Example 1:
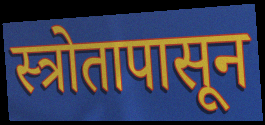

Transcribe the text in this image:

स्त्रोतापासून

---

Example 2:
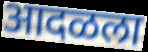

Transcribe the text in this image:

आदळला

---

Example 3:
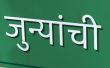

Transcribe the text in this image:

जुन्यांची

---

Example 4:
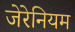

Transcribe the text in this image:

जेरेनियम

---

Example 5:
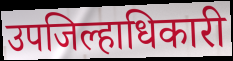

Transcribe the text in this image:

उपजिल्हाधिकारी